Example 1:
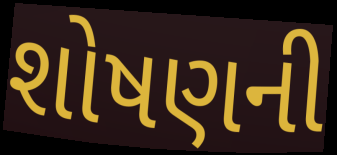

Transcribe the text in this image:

શોષણની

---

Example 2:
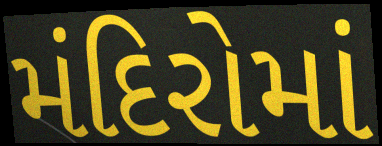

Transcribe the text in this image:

મંદિરોમાં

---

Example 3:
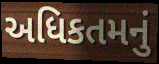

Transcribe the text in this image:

અધિકતમનું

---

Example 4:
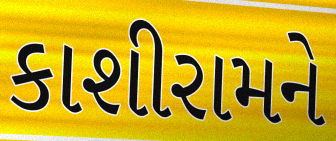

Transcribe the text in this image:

કાશીરામને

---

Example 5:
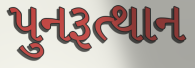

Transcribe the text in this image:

પુનરૂત્થાન